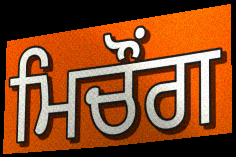
ਮਿਚੌਂਗ